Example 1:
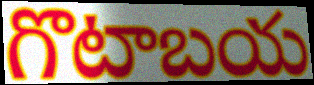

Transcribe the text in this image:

గొటాబయ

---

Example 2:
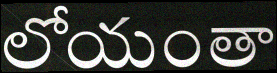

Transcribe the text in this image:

లోయంతా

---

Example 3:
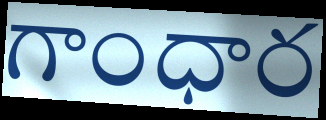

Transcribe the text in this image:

గాంధార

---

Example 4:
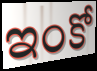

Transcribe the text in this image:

ఇంకో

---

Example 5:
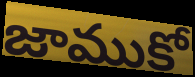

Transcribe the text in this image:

జాముకో